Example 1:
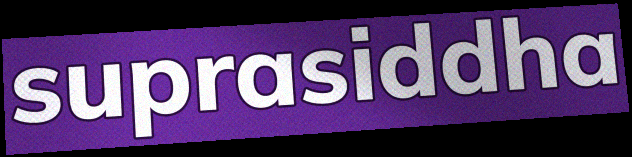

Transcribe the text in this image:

suprasiddha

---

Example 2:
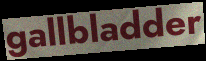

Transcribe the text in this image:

gallbladder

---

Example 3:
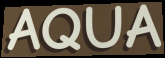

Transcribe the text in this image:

AQUA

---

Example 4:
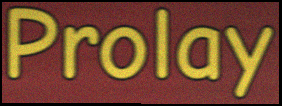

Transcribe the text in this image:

Prolay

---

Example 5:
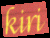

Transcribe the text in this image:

kiri